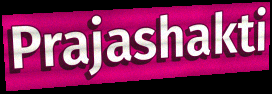
Prajashakti